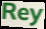
Rey